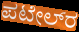
ಪಟೇಲ್‌ರ